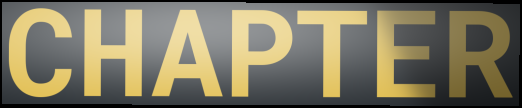
CHAPTER